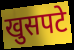
खुसपटे